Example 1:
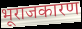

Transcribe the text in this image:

भूराजकारण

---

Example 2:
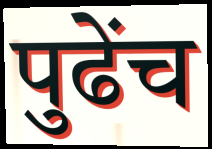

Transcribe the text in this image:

पुढेंच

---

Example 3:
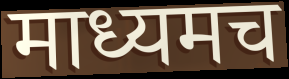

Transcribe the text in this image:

माध्यमच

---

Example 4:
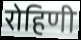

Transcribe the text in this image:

रोहिणी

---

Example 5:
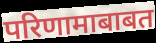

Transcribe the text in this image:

परिणामाबाबत